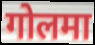
गोलमा